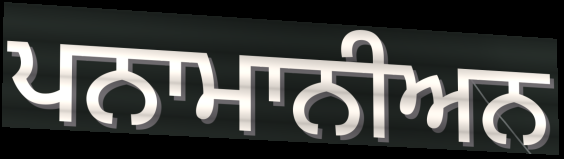
ਪਨਾਮਾਨੀਅਨ